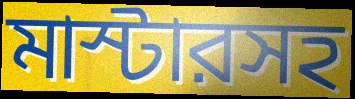
মাস্টারসহ